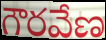
గౌరవేణ